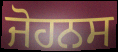
ਜੋਹਨਸ